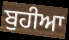
ਬੁਹੀਆ